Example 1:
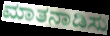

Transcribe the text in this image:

ಮಾತನಾಡಿಸು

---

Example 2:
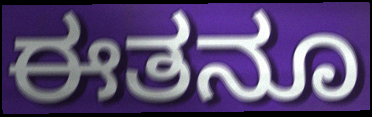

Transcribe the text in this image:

ಈತನೂ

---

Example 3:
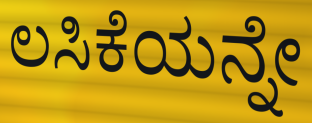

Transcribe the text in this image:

ಲಸಿಕೆಯನ್ನೇ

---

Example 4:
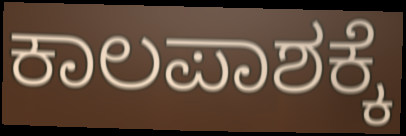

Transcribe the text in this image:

ಕಾಲಪಾಶಕ್ಕೆ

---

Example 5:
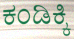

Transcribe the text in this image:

ಕಂಡಿಕ್ಕಿ